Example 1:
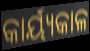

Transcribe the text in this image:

କାର୍ୟ୍ୟକାଳ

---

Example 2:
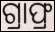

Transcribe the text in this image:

ଗ୍ରାଫ୍ର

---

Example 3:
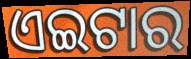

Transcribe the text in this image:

ଏଇଟାର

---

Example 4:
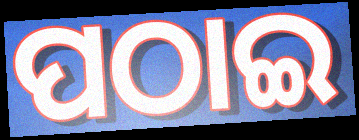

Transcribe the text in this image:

ପଠାଇ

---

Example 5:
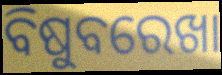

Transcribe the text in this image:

ବିଷୁବରେଖା